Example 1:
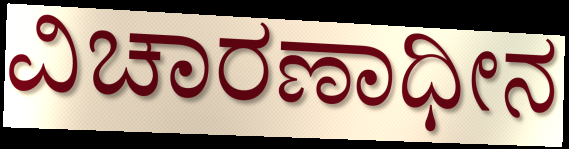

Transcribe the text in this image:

ವಿಚಾರಣಾಧೀನ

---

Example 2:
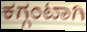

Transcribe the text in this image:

ಕಗ್ಗಂಟಾಗಿ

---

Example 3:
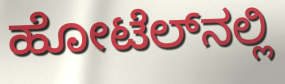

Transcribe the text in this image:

ಹೋಟೆಲ್‌ನಲ್ಲಿ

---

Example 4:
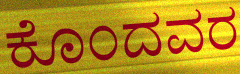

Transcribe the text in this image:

ಕೊಂದವರ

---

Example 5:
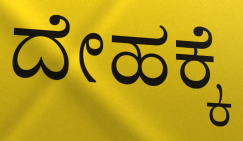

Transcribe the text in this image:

ದೇಹಕ್ಕೆ